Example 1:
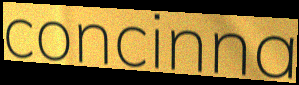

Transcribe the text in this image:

concinna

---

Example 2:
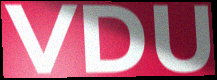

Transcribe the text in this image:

VDU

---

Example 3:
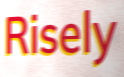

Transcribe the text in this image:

Risely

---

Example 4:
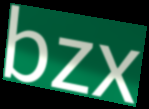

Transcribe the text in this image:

bzx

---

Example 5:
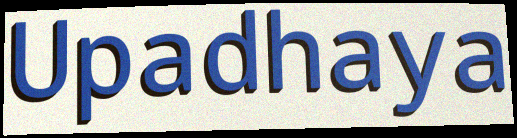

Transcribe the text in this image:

Upadhaya